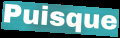
Puisque